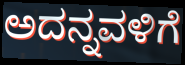
ಅದನ್ನವಳಿಗೆ